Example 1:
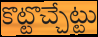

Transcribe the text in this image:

కొట్టొచ్చేట్టు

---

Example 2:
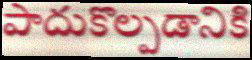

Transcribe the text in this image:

పాదుకొల్పడానికి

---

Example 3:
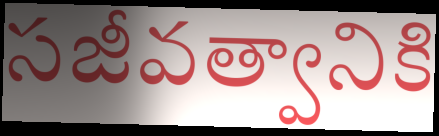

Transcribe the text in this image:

సజీవత్వానికి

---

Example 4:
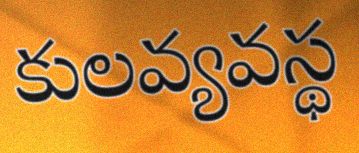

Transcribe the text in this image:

కులవ్యవస్థ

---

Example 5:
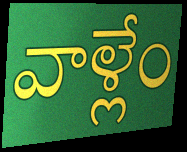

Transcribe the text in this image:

వాళ్లేం